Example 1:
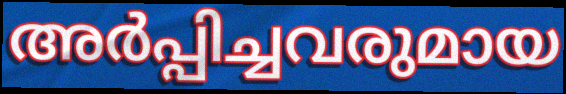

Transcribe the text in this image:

അർപ്പിച്ചവരുമായ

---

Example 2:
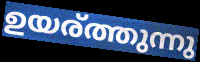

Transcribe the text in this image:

ഉയര്ത്തുന്നു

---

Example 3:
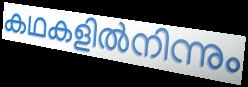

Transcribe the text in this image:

കഥകളിൽനിന്നും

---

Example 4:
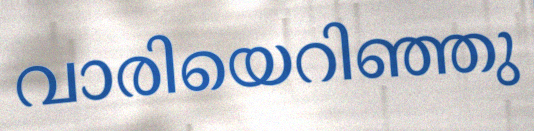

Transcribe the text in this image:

വാരിയെറിഞ്ഞു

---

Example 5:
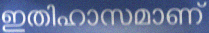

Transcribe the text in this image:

ഇതിഹാസമാണ്